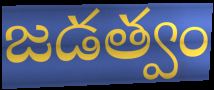
జడత్వం